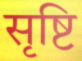
सृष्टि